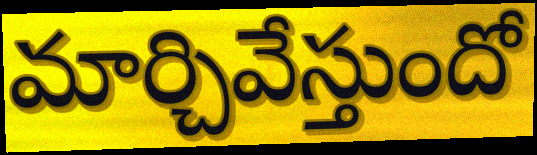
మార్చివేస్తుందో